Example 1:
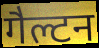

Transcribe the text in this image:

गैल्टन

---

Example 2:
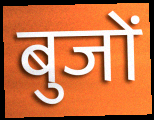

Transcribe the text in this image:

बुजों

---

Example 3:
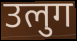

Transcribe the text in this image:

उलुग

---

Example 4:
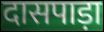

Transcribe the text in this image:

दासपाड़ा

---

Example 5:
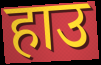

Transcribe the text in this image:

हाउ